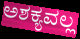
ಅಶಕ್ಯವಲ್ಲ